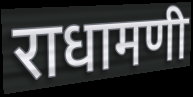
राधामणी